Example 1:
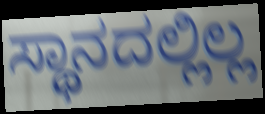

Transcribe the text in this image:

ಸ್ಥಾನದಲ್ಲಿಲ್ಲ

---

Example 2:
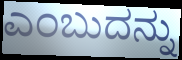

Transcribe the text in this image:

ಎಂಬುದನ್ನು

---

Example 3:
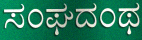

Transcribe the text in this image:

ಸಂಘದಂಥ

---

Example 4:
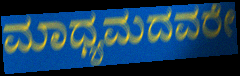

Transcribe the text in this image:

ಮಾಧ್ಯಮದವರೇ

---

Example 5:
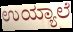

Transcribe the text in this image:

ಉಯ್ಯಾಲೆ